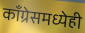
काँग्रेसमध्येही